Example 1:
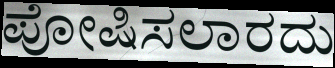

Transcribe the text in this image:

ಪೋಷಿಸಲಾರದು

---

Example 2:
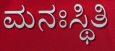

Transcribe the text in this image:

ಮನಃಸ್ಥಿತಿ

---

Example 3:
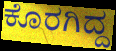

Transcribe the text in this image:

ಕೊರಗಿದ್ದ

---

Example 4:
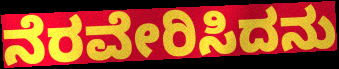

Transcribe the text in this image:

ನೆರವೇರಿಸಿದನು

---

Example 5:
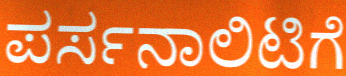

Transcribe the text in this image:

ಪರ್ಸನಾಲಿಟಿಗೆ